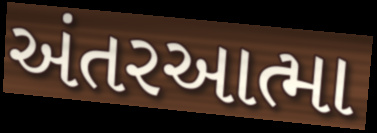
અંતરઆત્મા